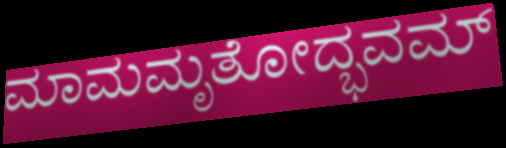
ಮಾಮಮೃತೋದ್ಭವಮ್